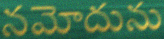
నమోదును